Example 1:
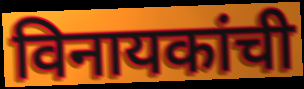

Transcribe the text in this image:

विनायकांची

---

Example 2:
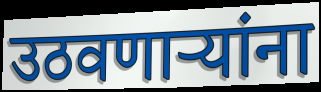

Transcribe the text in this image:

उठवणाऱ्यांना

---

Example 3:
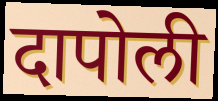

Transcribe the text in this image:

दापोली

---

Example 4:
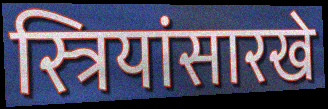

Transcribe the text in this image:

स्त्रियांसारखे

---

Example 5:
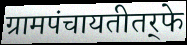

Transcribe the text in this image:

ग्रामपंचायतीतर्फे